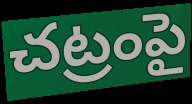
చట్రంపై